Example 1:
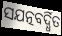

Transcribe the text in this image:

ସଯତ୍ନବର୍ଦ୍ଧିତ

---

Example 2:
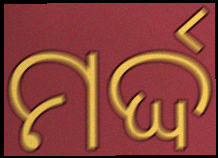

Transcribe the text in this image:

ମର୍ଦ୍ଦ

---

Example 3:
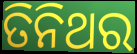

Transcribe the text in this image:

ତିନିଥର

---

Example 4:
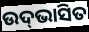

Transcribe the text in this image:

ଉଦ୍‍ଭାସିତ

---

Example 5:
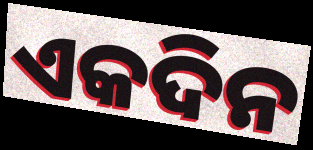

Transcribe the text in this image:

ଏକଦିନ